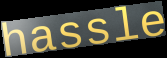
hassle